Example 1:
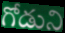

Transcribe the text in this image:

గోడుని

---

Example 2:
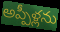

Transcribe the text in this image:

అప్పీళ్లను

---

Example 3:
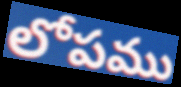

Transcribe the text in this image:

లోపము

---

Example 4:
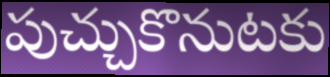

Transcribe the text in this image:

పుచ్చుకొనుటకు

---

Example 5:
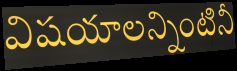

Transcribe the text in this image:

విషయాలన్నింటినీ